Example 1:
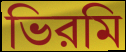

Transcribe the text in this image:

ভিরমি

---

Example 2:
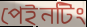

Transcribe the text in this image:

পেইনটিং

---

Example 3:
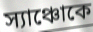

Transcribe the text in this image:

স্যাঞ্চোকে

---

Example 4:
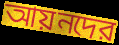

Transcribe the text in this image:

আয়নদের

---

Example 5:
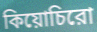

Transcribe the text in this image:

কিয়োচিরো